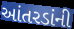
આંતરડાંની